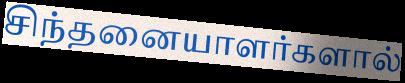
சிந்தனையாளர்களால்